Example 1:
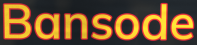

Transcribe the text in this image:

Bansode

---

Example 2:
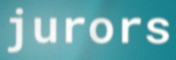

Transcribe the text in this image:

jurors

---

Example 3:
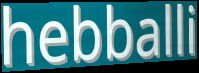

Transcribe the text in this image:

hebballi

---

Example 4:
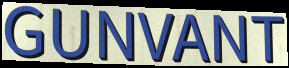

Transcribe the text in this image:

GUNVANT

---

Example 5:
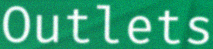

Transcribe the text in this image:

Outlets